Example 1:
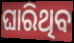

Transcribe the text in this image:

ଘାରିଥିବ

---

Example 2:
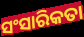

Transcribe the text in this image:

ସଂସାରିକତା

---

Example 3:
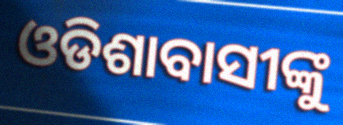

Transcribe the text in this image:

ଓଡିଶାବାସୀଙ୍କୁ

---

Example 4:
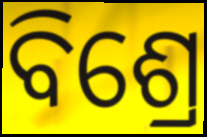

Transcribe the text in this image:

ବିଶ୍ରେ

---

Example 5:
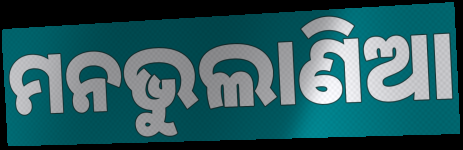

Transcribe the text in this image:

ମନଭୁଲାଣିଆ